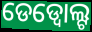
ଡେଡ୍ବୋଲ୍ଟ